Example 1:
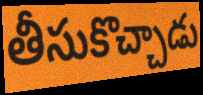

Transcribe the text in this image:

తీసుకొచ్చాడు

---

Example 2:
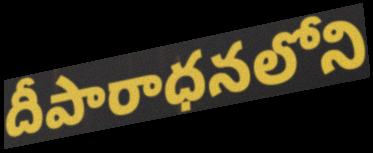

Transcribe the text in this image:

దీపారాధనలోని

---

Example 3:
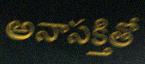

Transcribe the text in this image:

అనాసక్తితో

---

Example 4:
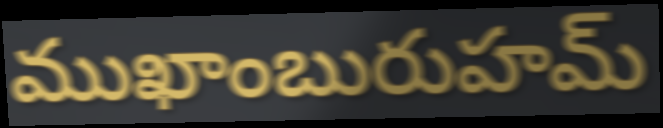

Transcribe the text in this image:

ముఖాంబురుహమ్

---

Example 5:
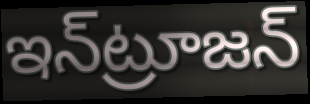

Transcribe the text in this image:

ఇన్‌ట్రూజన్